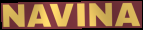
NAVINA